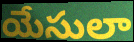
యేసులా